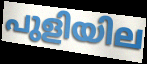
പുളിയില